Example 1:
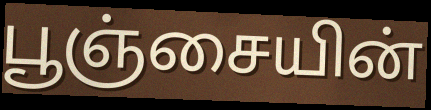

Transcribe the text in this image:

பூஞ்சையின்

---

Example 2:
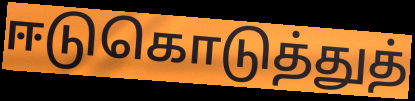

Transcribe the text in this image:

ஈடுகொடுத்துத்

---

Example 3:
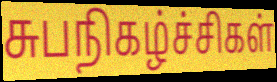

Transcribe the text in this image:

சுபநிகழ்ச்சிகள்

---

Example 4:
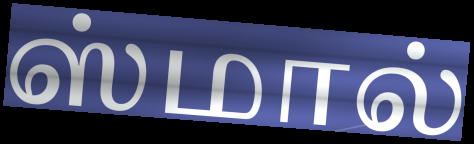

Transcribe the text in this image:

ஸ்மால்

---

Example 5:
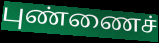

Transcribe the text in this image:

புண்ணைச்